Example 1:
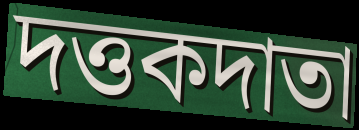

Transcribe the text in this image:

দত্তকদাতা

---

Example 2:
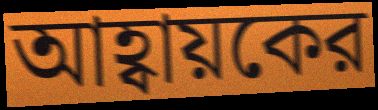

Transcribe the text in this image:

আহ্বায়কের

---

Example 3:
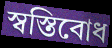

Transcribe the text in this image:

স্বস্তিবোধ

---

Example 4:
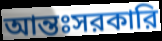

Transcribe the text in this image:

আন্তঃসরকারি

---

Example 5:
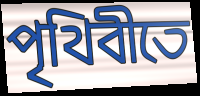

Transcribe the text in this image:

পৃথিবীতে